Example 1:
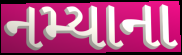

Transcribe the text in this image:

નમ્યાના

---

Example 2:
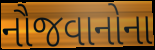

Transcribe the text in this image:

નૌજવાનોના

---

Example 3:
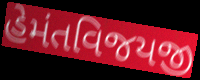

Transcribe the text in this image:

હેમંતવિજયજી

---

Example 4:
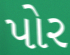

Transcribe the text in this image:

પોર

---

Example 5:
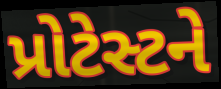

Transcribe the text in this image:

પ્રોટેસ્ટને